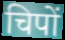
चिपों